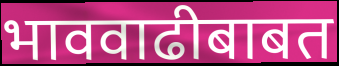
भाववाढीबाबत